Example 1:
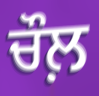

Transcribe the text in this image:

ਚੌਲ਼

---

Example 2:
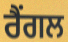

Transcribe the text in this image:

ਰੈਂਗਲ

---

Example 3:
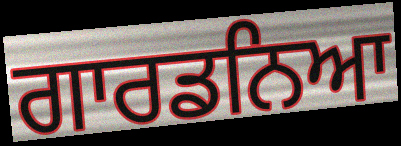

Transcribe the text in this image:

ਗਾਰਡਨਿਆ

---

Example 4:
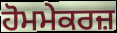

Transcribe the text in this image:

ਹੋਮਮੇਕਰਜ਼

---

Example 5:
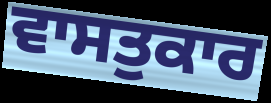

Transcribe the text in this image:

ਵਾਸਤੁਕਾਰ